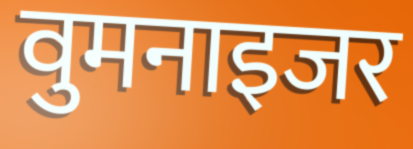
वुमनाइजर